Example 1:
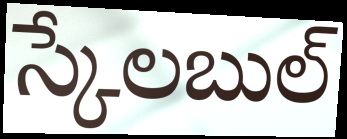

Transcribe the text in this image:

స్కేలబుల్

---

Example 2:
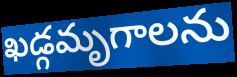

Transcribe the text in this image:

ఖడ్గమృగాలను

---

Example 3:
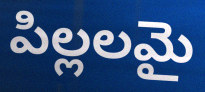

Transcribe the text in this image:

పిల్లలమై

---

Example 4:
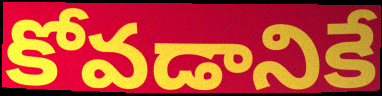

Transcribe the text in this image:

కోవడానికే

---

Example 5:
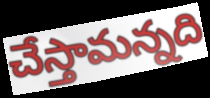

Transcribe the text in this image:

చేస్తామన్నది